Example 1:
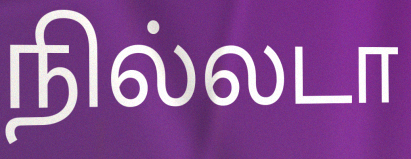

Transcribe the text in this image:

நில்லடா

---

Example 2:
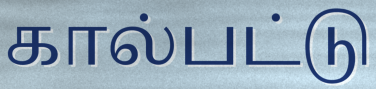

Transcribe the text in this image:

கால்பட்டு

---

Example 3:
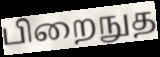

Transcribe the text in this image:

பிறைநுத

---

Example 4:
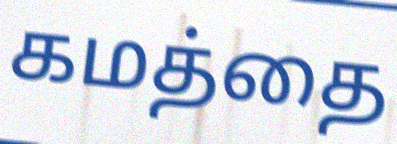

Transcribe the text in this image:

கமத்தை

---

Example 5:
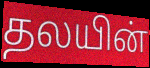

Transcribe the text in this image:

தலயின்